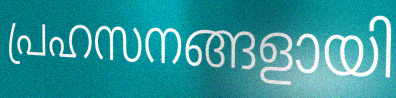
പ്രഹസനങ്ങളായി